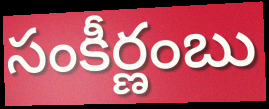
సంకీర్ణంబు